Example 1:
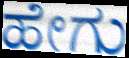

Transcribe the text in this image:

ಹೇಗು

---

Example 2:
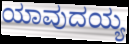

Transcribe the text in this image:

ಯಾವುದಯ್ಯ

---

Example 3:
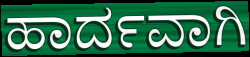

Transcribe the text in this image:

ಹಾರ್ದವಾಗಿ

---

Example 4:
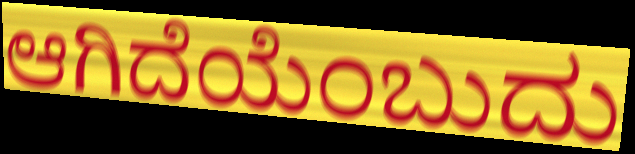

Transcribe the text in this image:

ಆಗಿದೆಯೆಂಬುದು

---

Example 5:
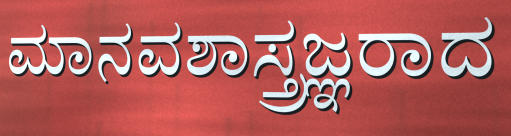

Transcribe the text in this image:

ಮಾನವಶಾಸ್ತ್ರಜ್ಞರಾದ